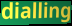
dialling